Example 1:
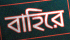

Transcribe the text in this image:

বাহিরে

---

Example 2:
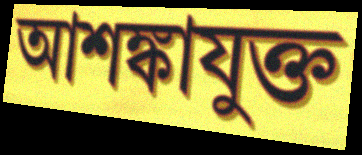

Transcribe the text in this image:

আশঙ্কাযুক্ত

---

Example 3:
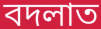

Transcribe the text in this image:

বদলাত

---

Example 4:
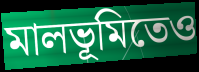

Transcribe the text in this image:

মালভূমিতেও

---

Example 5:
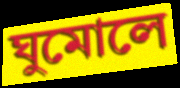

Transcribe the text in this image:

ঘুমোলে